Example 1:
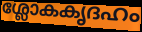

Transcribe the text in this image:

ശ്ലോകകൃദഹം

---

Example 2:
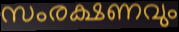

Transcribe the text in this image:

സംരക്ഷണവും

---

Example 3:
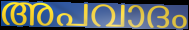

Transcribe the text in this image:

അപവാദം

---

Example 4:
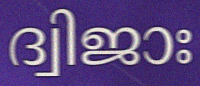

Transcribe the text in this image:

ദ്വിജാഃ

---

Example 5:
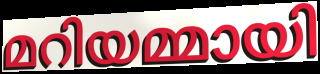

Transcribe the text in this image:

മറിയമ്മായി